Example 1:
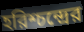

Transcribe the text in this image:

হরিশ্চন্দ্রের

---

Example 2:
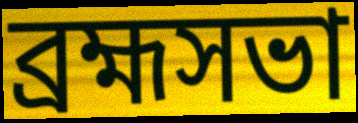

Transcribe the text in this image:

ব্রহ্মসভা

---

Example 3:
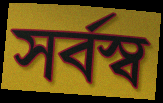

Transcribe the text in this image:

সর্বস্ব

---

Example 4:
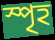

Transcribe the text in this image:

স্পৃহ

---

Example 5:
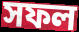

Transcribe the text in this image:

সফল